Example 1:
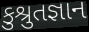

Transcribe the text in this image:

કુશ્રુતજ્ઞાન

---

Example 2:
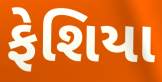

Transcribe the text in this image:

ફેશિયા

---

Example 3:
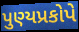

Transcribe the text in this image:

પુણ્યપ્રકોપે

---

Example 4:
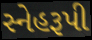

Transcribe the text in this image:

સ્નેહરૂપી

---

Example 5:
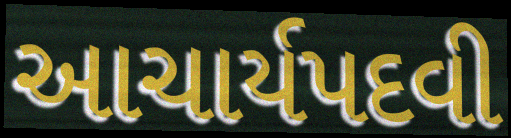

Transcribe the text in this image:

આચાર્યપદવી